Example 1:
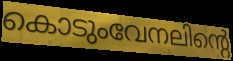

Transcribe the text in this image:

കൊടുംവേനലിന്റെ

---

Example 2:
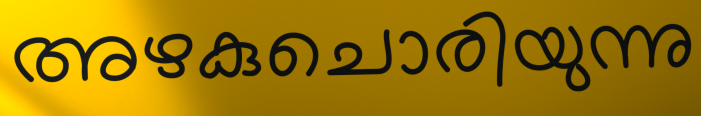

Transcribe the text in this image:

അഴകുചൊരിയുന്നു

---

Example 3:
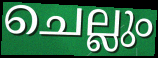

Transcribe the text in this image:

ചെല്ലും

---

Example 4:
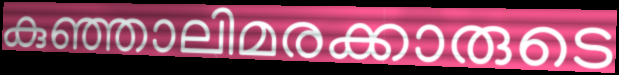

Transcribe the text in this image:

കുഞ്ഞാലിമരക്കാരുടെ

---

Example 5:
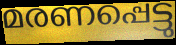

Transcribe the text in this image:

മരണപ്പെട്ടു